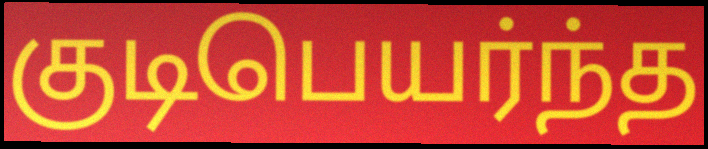
குடிபெயர்ந்த